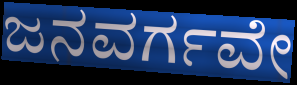
ಜನವರ್ಗವೇ